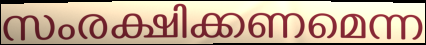
സംരക്ഷിക്കണമെന്ന